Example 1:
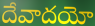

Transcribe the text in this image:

దేవాదయో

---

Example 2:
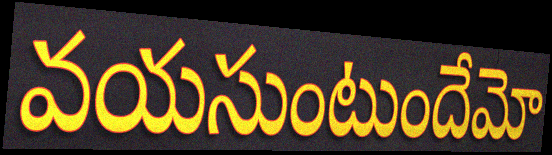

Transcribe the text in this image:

వయసుంటుందేమో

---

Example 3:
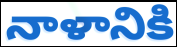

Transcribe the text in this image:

నాళానికి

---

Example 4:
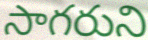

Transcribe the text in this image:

సాగరుని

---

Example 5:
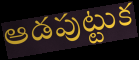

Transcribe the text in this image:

ఆడపుట్టుక